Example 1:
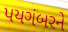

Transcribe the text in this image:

પયગંબરને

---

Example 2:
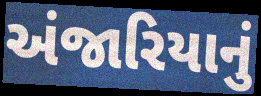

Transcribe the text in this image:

અંજારિયાનું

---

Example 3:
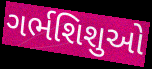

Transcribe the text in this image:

ગર્ભશિશુઓ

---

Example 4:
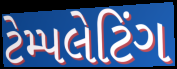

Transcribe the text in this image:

ટેમ્પલેટિંગ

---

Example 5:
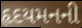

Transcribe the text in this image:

હૃદયમનની